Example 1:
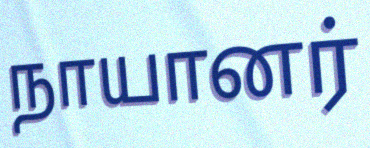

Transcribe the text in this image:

நாயானர்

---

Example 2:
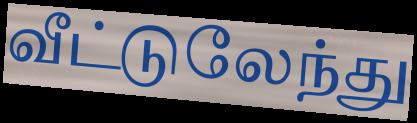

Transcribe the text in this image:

வீட்டுலேந்து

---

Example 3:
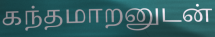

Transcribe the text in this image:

கந்தமாறனுடன்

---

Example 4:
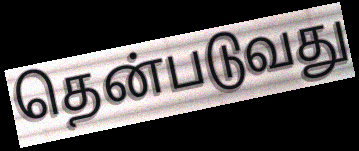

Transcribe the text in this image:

தென்படுவது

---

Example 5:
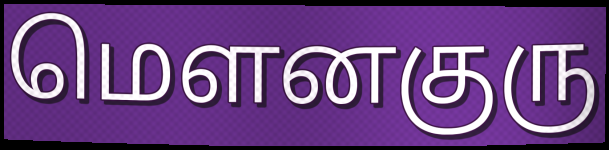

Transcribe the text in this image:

மௌனகுரு